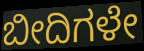
ಬೀದಿಗಳೇ